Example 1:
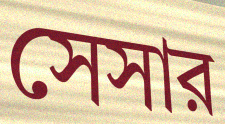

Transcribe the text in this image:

সেসার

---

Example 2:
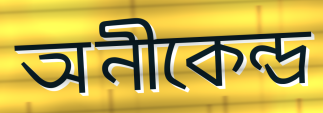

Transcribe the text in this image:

অনীকেন্দ্র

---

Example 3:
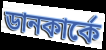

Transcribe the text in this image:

ডানকার্কে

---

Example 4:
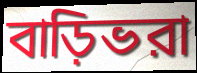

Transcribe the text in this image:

বাড়িভরা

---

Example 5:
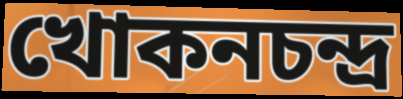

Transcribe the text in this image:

খোকনচন্দ্র